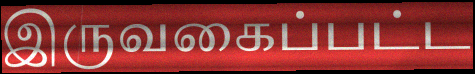
இருவகைப்பட்ட